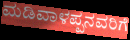
ಮಡಿವಾಳಪ್ಪನವರಿಗೆ